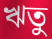
ঋতু